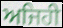
ਅਜਿਹੀ